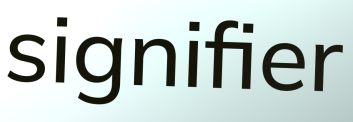
signifier